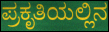
ಪ್ರಕೃತಿಯಲ್ಲಿನ